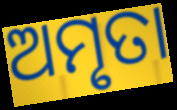
ଅମୃତା